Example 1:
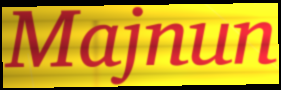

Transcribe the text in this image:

Majnun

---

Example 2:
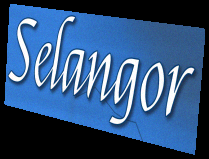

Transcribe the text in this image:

Selangor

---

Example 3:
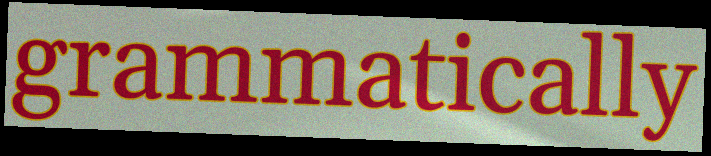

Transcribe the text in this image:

grammatically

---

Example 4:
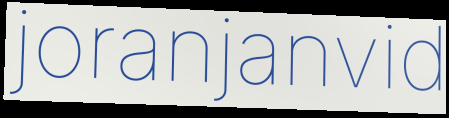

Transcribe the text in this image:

joranjanvid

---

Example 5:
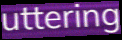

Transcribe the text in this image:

uttering